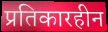
प्रतिकारहीन